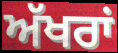
ਅੱਖਰਾਂ